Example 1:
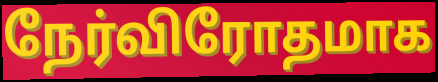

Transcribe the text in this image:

நேர்விரோதமாக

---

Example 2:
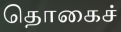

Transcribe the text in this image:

தொகைச்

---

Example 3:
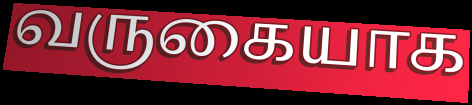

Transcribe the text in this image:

வருகையாக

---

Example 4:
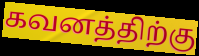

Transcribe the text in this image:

கவனத்திற்கு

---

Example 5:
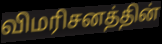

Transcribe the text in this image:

விமரிசனத்தின்